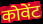
कोवेंट